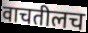
वाचतीलच